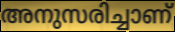
അനുസരിച്ചാണ്